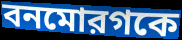
বনমোরগকে